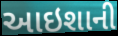
આઇશાની